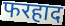
फरहाद